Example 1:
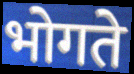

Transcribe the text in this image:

भोगते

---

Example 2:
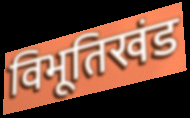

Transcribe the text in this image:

विभूतिखंड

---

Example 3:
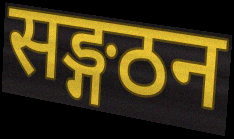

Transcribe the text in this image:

सङ्गठन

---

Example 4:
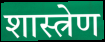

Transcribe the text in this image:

शास्त्रेण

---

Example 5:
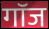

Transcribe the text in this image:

गॉज